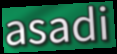
asadi